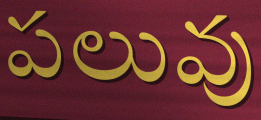
పలువు